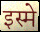
इस्मे